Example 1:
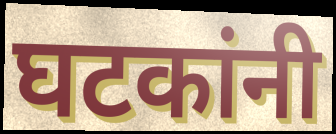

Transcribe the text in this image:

घटकांनी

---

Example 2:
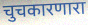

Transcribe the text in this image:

चुचकारणारा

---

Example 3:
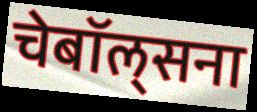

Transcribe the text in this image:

चेबॉल्सना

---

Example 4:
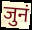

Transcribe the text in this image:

जुनं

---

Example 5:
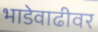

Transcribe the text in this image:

भाडेवाढीवर